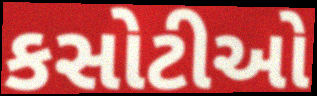
કસોટીઓ